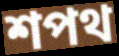
শপথ